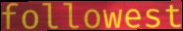
followest